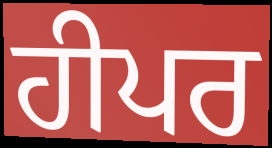
ਹੀਪਰ